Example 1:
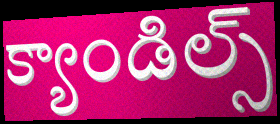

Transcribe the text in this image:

క్యాండిల్స్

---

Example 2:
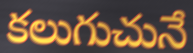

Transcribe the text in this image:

కలుగుచునే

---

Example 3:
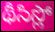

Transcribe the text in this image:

థీసిస్లో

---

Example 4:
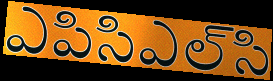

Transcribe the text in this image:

ఎపిసిఎల్‌సి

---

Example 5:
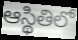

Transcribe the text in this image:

ఆస్థితిలో